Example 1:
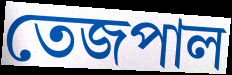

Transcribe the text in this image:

তেজপাল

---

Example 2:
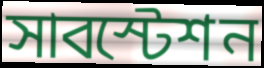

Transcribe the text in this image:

সাবস্টেশন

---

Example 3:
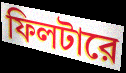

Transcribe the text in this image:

ফিলটারে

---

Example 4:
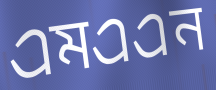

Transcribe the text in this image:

এমএএন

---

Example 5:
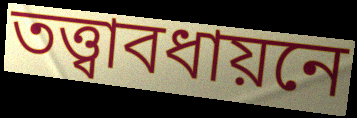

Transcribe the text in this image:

তত্ত্বাবধায়নে